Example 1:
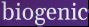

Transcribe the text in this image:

biogenic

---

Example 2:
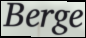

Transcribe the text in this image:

Berge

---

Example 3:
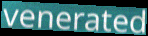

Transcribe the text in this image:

venerated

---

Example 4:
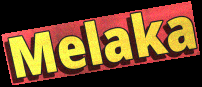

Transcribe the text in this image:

Melaka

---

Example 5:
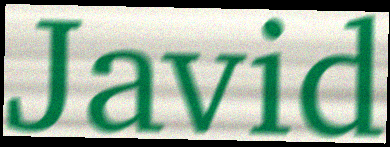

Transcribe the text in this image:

Javid